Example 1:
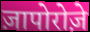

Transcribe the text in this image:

ज़ापोरोज़े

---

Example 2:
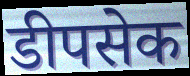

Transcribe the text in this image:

डीपसेक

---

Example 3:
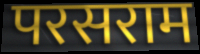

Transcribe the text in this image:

परसराम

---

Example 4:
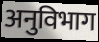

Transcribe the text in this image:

अनुविभाग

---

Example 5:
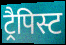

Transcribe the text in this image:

ट्रैपिस्ट